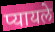
प्यायले